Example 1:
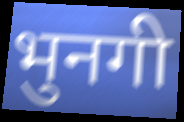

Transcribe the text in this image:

भुनगी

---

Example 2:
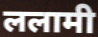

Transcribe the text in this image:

ललामी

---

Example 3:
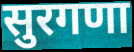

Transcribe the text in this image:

सुरगणा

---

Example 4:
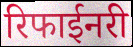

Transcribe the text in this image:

रिफाईनरी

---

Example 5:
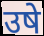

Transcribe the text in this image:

उषे